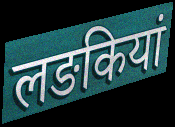
लङकियां